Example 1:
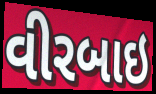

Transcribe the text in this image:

વીરબાઇ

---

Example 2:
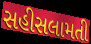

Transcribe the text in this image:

સહીસલામતી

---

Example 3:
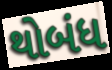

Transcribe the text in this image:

થોબંધ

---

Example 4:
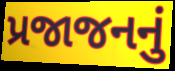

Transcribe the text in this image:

પ્રજાજનનું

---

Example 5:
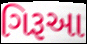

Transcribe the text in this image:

ગિરૂઆ